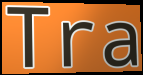
Tra